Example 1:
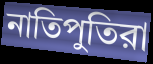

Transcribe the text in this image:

নাতিপুতিরা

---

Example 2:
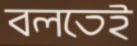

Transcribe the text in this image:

বলতেই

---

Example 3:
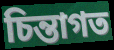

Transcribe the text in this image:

চিন্তাগত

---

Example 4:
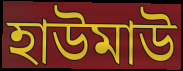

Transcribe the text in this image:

হাউমাউ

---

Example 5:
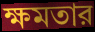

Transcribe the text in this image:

ক্ষমতার